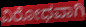
ವಿರೋಧವಾಗಿ